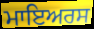
ਮਾਇਅਰਸ